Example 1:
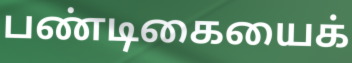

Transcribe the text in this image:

பண்டிகையைக்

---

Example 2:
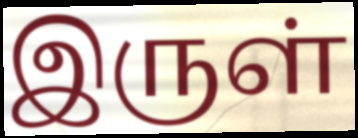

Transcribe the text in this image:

இருள்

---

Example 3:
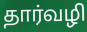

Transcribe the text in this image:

தார்வழி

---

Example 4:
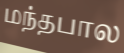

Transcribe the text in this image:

மந்தபால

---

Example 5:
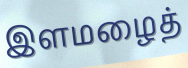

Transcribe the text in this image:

இளமழைத்